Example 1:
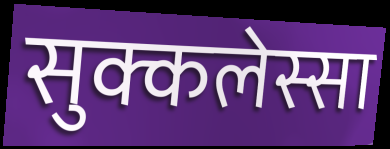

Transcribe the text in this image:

सुक्कलेस्सा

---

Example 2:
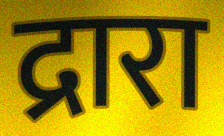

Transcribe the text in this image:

द्रारा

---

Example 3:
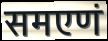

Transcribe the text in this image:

समएणं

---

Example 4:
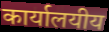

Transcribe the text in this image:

कार्यालयीय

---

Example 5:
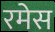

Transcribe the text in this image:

रमेस